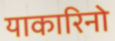
याकारिनो